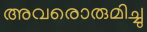
അവരൊരുമിച്ചു